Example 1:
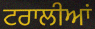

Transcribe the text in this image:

ਟਰਾਲੀਆਂ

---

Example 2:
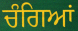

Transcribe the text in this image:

ਚੰਗਿਆਂ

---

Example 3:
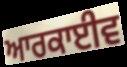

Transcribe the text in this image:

ਆਰਕਾਈਵ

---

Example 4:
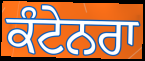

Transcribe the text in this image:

ਕੰਟੇਨਰਾ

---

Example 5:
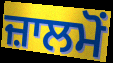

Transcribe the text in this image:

ਜ਼ਾਲਮੋਂ